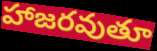
హాజరవుతూ